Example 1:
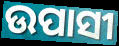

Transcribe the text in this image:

ଉପାସୀ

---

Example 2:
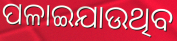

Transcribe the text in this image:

ପଳାଇଯାଉଥିବ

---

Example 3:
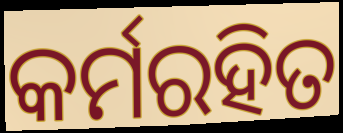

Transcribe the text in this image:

କର୍ମରହିତ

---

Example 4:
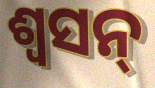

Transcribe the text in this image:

ଶ୍ୱସନ୍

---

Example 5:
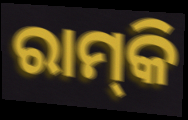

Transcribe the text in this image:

ରାମ୍‌କି